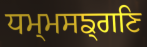
ਧਮ੍ਮਸਙ੍ਗਣਿ